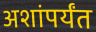
अशांपर्यंत